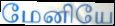
மேனியே